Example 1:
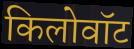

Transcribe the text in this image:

किलोवॉट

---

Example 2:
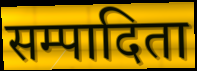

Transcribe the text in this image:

सम्पादिता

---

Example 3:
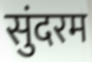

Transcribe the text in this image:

सुंदरम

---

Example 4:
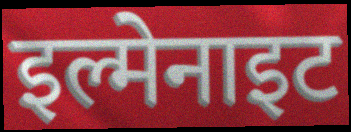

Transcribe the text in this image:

इल्मेनाइट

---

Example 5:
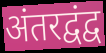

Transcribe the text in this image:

अंतरद्वंद्व